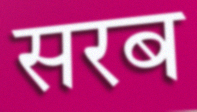
सरब